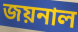
জয়নাল